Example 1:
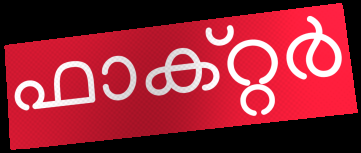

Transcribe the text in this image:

ഫാക്റ്റർ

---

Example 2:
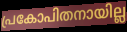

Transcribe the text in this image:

പ്രകോപിതനായില്ല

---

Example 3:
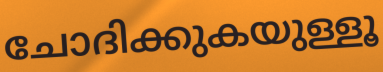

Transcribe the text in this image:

ചോദിക്കുകയുള്ളൂ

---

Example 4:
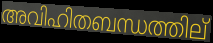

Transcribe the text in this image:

അവിഹിതബന്ധത്തില്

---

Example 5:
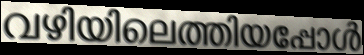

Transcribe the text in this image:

വഴിയിലെത്തിയപ്പോൾ